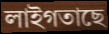
লাইগতাছে